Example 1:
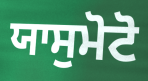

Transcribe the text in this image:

ਯਾਸੁਮੋਟੋ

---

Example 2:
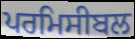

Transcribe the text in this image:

ਪਰਮਿਸੀਬਲ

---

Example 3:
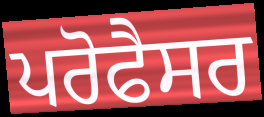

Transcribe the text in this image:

ਪਰੋਫੈਸਰ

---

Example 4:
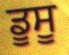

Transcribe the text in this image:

ਡੂਸੂ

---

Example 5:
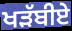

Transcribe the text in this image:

ਖੜੱਬੀਏ